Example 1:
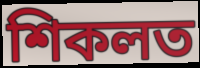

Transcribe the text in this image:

শিকলত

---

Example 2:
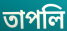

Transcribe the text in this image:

তাপলি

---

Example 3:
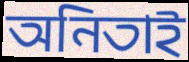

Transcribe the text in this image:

অনিতাই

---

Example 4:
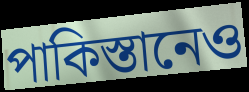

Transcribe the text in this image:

পাকিস্তানেও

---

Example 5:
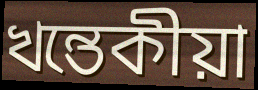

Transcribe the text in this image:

খন্তেকীয়া